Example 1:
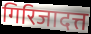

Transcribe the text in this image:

गिरिजादत्त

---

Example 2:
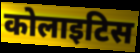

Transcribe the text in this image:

कोलाइटिस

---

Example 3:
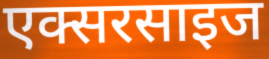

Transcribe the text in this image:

एक्सरसाइज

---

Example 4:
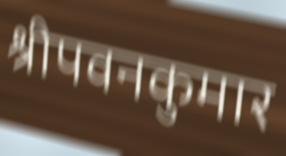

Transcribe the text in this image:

श्रीपवनकुमार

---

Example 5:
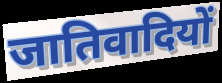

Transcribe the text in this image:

जातिवादियों